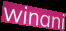
winani